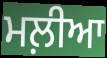
ਮਲ਼ੀਆ